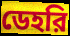
ডেহরি